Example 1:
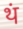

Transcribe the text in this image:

थं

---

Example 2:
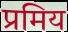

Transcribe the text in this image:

प्रमिय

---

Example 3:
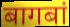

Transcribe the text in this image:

बागबां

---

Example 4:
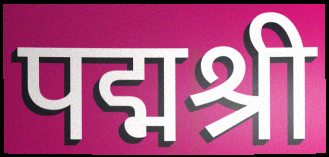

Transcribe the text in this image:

पद्मश्री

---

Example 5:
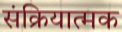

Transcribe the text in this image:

संक्रियात्मक